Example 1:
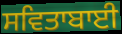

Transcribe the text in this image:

ਸਵਿਤਾਬਾਈ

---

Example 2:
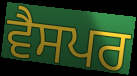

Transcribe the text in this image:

ਵੈਸਪਰ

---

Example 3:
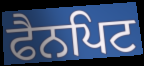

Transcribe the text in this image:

ਫੈਨਪਿਟ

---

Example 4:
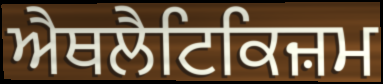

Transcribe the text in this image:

ਐਥਲੈਟਿਕਿਜ਼ਮ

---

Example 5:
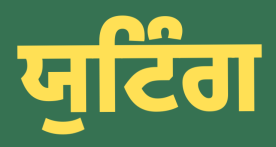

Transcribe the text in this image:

ਯੁਟਿੰਗ